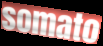
somato